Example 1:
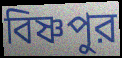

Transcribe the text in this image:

বিষ্ণপুর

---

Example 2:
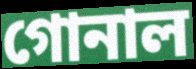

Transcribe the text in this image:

গোনাল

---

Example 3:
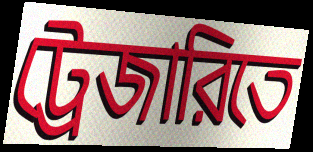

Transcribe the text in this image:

ট্রেজারিতে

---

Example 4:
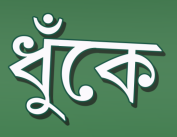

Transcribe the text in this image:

ধুঁকে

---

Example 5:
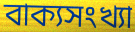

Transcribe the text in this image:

বাক্যসংখ্যা